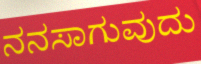
ನನಸಾಗುವುದು